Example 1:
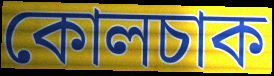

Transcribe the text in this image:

কোলচাক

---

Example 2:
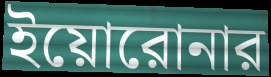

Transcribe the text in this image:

ইয়োরোনার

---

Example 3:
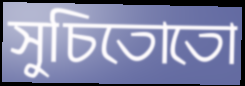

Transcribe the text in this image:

সুচিতোতো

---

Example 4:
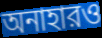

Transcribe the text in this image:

অনাহারও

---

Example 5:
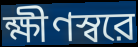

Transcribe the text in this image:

ক্ষীণস্বরে